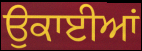
ਉਕਾਈਆਂ